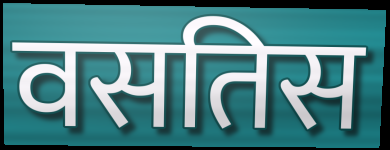
वसतिस